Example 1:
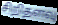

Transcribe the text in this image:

சிறிதளவு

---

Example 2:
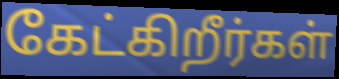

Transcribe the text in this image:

கேட்கிறீர்கள்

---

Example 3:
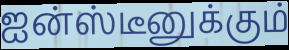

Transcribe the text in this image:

ஐன்ஸ்டீனுக்கும்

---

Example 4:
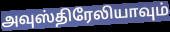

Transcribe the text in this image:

அவுஸ்திரேலியாவும்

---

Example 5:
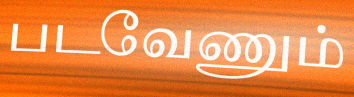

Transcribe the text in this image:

படவேணும்